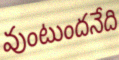
వుంటుందనేది